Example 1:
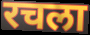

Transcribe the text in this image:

रचला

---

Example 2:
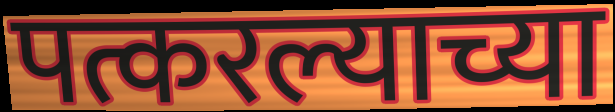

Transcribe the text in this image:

पत्करल्याच्या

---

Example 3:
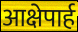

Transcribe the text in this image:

आक्षेपार्ह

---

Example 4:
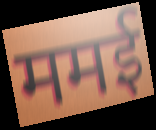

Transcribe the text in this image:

ममई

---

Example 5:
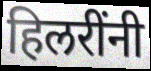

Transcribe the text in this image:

हिलरींनी